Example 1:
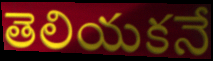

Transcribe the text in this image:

తెలియకనే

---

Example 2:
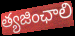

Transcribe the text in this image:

త్యజింఛాలి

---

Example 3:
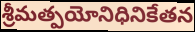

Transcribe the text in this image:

శ్రీమత్పయోనిధినికేతన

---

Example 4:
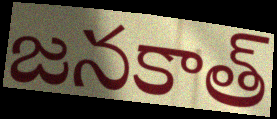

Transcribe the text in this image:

జనకాత్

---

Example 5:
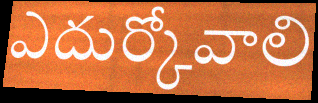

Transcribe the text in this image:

ఎదుర్కోవాలి